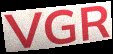
VGR